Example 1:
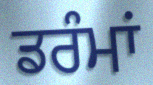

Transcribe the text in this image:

ਡਰੰਮਾਂ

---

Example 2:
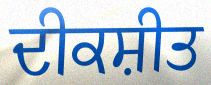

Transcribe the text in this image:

ਦੀਕਸ਼ੀਤ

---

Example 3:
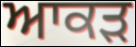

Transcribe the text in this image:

ਆਕੜ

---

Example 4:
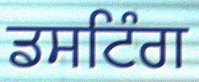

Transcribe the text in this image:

ਡਸਟਿੰਗ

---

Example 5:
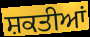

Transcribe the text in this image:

ਸ਼ਕਤੀਆਂ